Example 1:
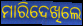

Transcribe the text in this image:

ମାରିଦେଖିଲେ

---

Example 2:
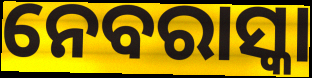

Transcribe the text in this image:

ନେବରାସ୍କା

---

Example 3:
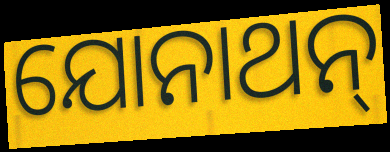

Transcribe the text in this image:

ଯୋନାଥନ୍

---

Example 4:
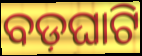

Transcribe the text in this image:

ବଡ଼ଘାଟି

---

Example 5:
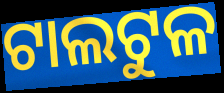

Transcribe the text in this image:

ଟାଲଟୁଳ